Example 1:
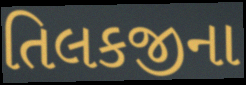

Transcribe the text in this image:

તિલકજીના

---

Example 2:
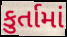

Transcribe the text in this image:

કુર્તામાં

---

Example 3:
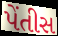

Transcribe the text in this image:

પેંતીસ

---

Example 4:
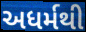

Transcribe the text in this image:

અધર્મથી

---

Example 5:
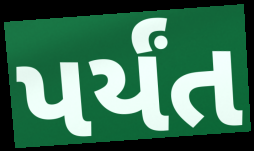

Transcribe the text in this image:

પર્યંત